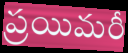
ప్రయిమరీ